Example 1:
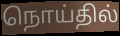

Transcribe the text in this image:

நொய்தில்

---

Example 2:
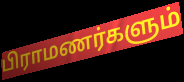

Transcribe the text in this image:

பிராமணர்களும்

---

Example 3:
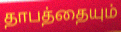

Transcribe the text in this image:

தாபத்தையும்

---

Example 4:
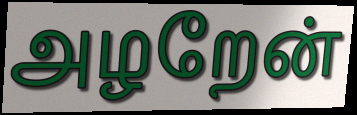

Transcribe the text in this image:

அழறேன்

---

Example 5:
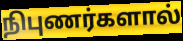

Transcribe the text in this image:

நிபுணர்களால்